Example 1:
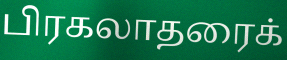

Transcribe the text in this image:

பிரகலாதரைக்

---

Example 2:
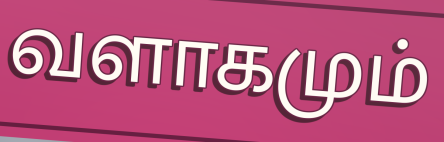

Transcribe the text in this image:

வளாகமும்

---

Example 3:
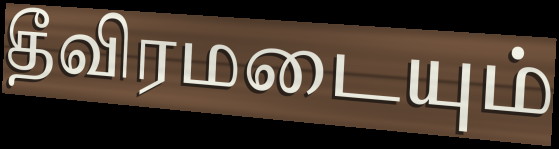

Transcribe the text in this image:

தீவிரமடையும்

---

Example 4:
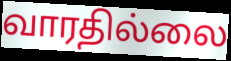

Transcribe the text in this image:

வாரதில்லை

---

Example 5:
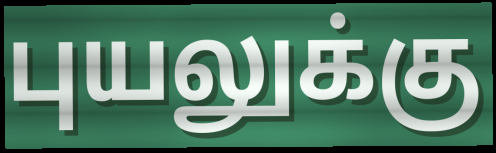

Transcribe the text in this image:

புயலுக்கு